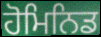
ਹੋਮਿਨਿਡ